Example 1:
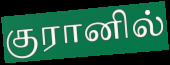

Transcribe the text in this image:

குரானில்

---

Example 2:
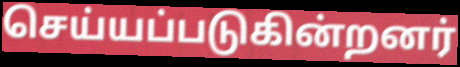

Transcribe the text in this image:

செய்யப்படுகின்றனர்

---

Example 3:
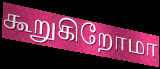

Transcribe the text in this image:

கூறுகிறோமா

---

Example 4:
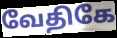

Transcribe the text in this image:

வேதிகே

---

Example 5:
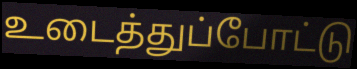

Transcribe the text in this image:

உடைத்துப்போட்டு